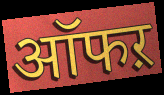
ऑफऱ